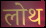
लोथ